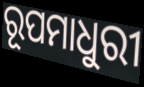
ରୂପମାଧୁରୀ